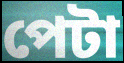
পেটা